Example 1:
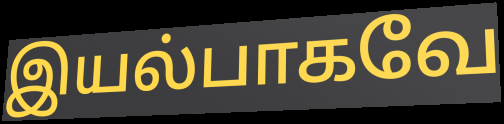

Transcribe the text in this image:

இயல்பாகவே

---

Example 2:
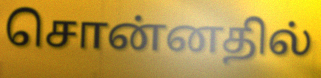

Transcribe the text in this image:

சொன்னதில்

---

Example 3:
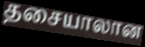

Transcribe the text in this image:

தசையாலான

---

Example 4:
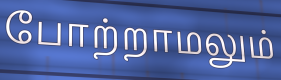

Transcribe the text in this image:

போற்றாமலும்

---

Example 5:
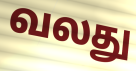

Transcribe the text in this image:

வலது